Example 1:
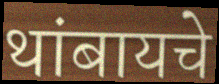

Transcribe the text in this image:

थांबायचे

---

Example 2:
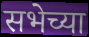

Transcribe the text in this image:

सभेच्या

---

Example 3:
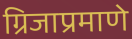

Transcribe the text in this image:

ग्रिजाप्रमाणे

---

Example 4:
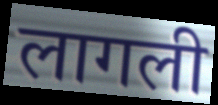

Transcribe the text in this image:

लागली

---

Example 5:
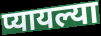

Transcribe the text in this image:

प्यायल्या